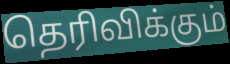
தெரிவிக்கும்